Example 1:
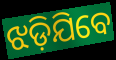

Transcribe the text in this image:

ଝଡ଼ିଯିବେ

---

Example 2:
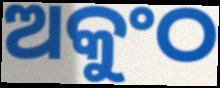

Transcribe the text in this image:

ଅକୁଂଠ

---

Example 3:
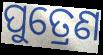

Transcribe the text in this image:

ପୁତ୍ରେଣ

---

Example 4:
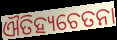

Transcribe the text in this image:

ଐତିହ୍ୟଚେତନା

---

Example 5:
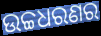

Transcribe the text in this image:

ଉଚ୍ଚଧରଣର